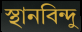
স্থানবিন্দু